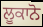
ਲੂਕਾਨੋ